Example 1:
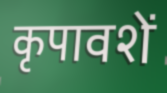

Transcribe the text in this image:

कृपावशें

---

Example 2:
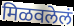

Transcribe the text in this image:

मिळवलेलं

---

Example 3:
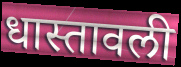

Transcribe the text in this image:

धास्तावली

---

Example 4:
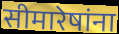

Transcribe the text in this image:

सीमारेषांना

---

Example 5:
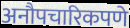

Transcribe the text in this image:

अनौपचारिकपणे